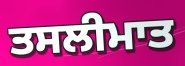
ਤਸਲੀਮਾਤ